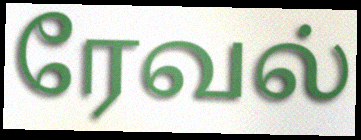
ரேவல்